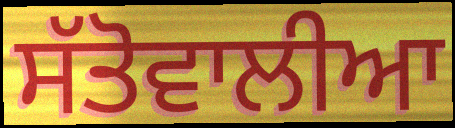
ਸੱਤੋਵਾਲੀਆ